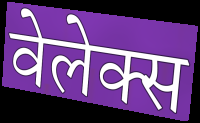
वेलेक्स